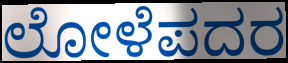
ಲೋಳೆಪದರ